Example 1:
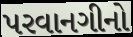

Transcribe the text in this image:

પરવાનગીનો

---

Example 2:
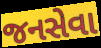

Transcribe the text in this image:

જનસેવા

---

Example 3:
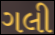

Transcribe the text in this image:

ગલી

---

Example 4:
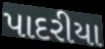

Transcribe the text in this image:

પાદરીયા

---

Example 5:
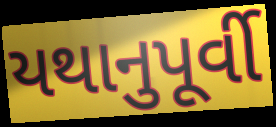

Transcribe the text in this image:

યથાનુપૂર્વી